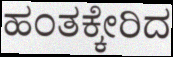
ಹಂತಕ್ಕೇರಿದ